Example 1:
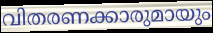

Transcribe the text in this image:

വിതരണക്കാരുമായും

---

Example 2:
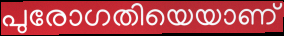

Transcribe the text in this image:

പുരോഗതിയെയാണ്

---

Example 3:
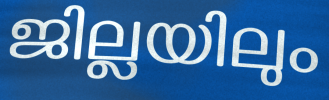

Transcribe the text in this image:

ജില്ലയിലും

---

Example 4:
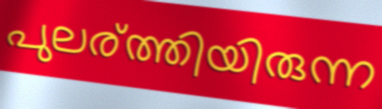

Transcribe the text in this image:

പുലര്ത്തിയിരുന്ന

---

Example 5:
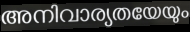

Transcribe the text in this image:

അനിവാര്യതയേയും